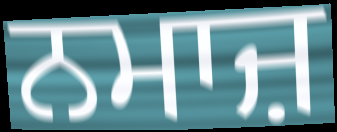
ਨਮਾਜ਼